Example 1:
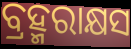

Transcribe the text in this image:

ବ୍ରହ୍ମରାକ୍ଷସ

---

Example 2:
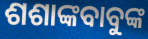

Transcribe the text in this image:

ଶଶାଙ୍କବାବୁଙ୍କ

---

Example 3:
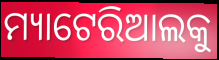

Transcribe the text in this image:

ମ୍ୟାଟେରିଆଲକୁ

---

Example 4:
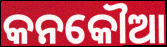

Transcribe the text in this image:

କନକୌଆ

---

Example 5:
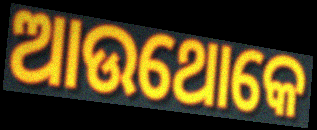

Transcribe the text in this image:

ଆଉଥୋକେ